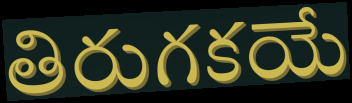
తిరుగకయే